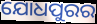
ଯୋଧପୁରର